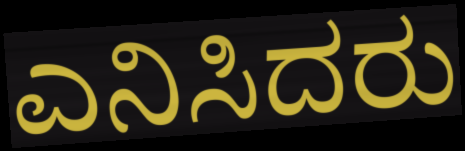
ಎನಿಸಿದರು